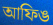
আফিঙ